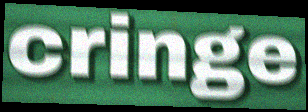
cringe